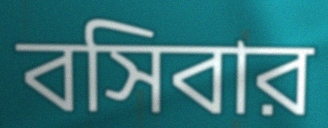
বসিবার